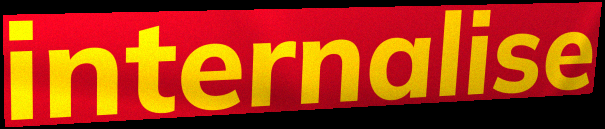
internalise